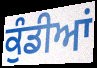
ਕੁੰਡੀਆਂ